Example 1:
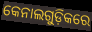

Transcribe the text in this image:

କେନାଲଗୁଡ଼ିକରେ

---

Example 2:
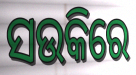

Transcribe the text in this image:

ସଉକିରେ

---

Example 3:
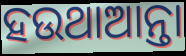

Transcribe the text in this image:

ହଉଥାଆନ୍ତା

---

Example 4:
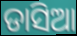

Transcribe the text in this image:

ଡାସିଆ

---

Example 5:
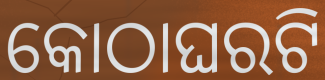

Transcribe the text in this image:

କୋଠାଘରଟି